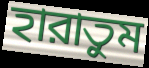
হারাতুম